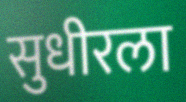
सुधीरला